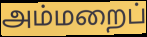
அம்மறைப்